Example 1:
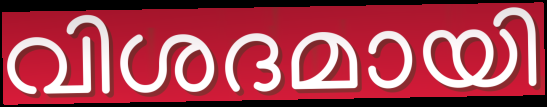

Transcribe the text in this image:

വിശദമായി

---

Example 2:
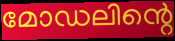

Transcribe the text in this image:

മോഡലിന്റെ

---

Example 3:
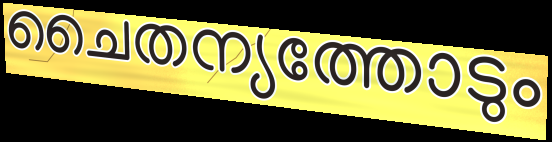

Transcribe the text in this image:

ചൈതന്യത്തോടും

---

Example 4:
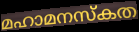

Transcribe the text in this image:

മഹാമനസ്കത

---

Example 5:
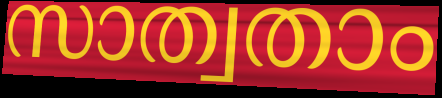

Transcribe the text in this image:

സാത്വതാം